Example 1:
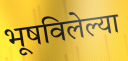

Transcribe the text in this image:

भूषविलेल्या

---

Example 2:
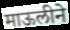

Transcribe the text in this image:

माऊलीने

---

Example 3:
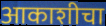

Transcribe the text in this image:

आकाशीचा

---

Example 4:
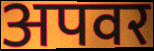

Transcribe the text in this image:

अपवर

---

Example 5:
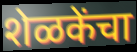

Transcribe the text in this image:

शेळकेंचा